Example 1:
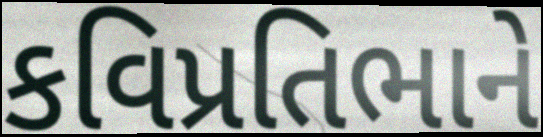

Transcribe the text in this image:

કવિપ્રતિભાને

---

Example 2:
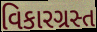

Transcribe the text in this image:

વિકારગ્રસ્ત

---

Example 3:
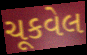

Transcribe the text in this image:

ચૂકવેલ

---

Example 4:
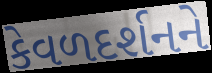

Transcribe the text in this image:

કેવળદર્શનને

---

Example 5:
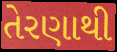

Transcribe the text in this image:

તેરણાથી